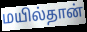
மயில்தான்